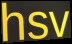
hsv